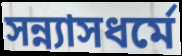
সন্ন্যাসধর্মে